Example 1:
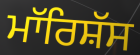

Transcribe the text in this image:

ਮਾੱਰਿਸ਼ੱਸ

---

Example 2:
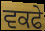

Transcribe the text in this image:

ਵਕਫੇ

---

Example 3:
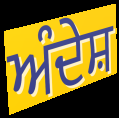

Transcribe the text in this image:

ਅੰਦੇਸ਼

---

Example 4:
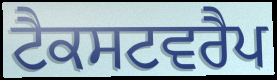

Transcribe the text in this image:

ਟੈਕਸਟਵਰੈਪ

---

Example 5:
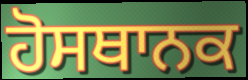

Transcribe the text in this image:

ਹੋਸਥਾਨਕ